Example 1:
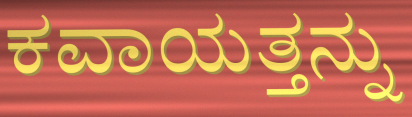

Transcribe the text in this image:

ಕವಾಯತ್ತನ್ನು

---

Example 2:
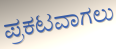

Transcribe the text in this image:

ಪ್ರಕಟವಾಗಲು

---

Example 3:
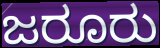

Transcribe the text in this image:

ಜರೂರು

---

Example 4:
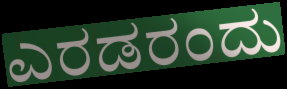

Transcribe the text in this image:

ಎರಡರಂದು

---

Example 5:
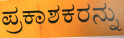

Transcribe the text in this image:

ಪ್ರಕಾಶಕರನ್ನು